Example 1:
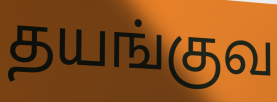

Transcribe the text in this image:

தயங்குவ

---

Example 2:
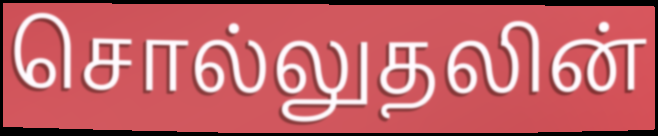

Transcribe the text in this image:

சொல்லுதலின்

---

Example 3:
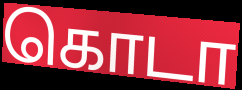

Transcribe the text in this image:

கொடா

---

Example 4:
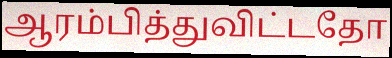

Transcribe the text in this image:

ஆரம்பித்துவிட்டதோ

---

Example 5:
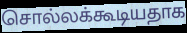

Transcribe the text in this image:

சொல்லக்கூடியதாக